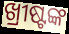
ଖ୍ରୀଷ୍ଟଙ୍କ